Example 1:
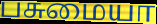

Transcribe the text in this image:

பசுமையா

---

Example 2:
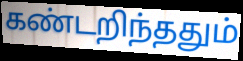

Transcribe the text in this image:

கண்டறிந்ததும்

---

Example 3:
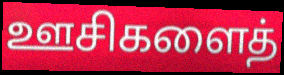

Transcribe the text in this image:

ஊசிகளைத்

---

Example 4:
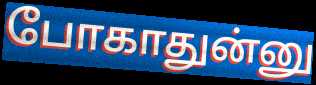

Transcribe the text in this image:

போகாதுன்னு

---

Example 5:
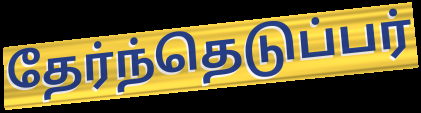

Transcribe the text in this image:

தேர்ந்தெடுப்பர்